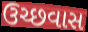
ઉચ્છવાસ